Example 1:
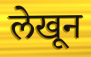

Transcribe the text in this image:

लेखून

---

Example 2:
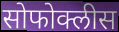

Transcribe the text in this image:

सोफोक्लीस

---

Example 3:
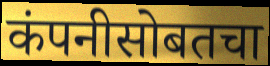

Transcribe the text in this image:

कंपनीसोबतचा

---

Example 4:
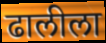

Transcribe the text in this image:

ढालीला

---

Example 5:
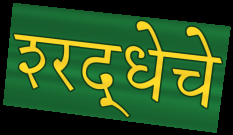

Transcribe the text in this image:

श्रद्धेचे